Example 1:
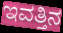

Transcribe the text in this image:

ಇವತ್ತಿನ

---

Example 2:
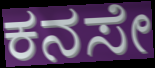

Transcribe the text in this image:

ಕನಸೇ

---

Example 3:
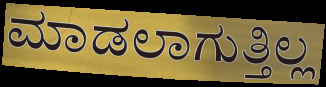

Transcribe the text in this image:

ಮಾಡಲಾಗುತ್ತಿಲ್ಲ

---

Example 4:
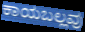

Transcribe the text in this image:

ಕಾಯಬಲ್ಲವು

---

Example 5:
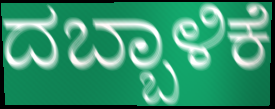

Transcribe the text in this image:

ದಬ್ಬಾಳಿಕೆ